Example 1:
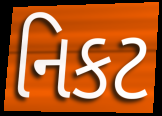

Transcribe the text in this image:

નિકટ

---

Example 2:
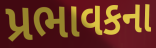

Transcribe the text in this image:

પ્રભાવકના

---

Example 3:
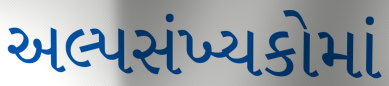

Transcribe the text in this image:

અલ્પસંખ્યકોમાં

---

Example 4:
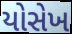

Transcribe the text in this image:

યોસેખ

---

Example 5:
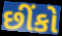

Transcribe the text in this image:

છીંકો